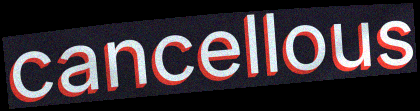
cancellous